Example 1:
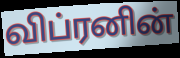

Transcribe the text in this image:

விப்ரனின்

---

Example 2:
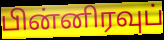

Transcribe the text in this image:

பின்னிரவுப்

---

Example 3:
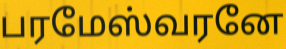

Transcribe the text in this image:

பரமேஸ்வரனே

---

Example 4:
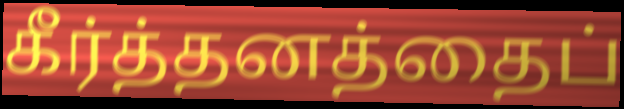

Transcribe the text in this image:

கீர்த்தனத்தைப்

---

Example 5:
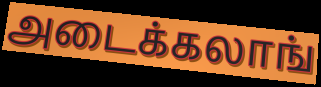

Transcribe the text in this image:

அடைக்கலாங்